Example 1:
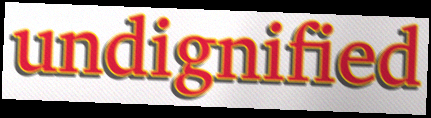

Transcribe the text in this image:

undignified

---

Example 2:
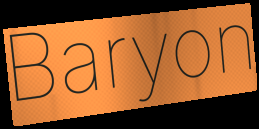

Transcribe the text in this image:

Baryon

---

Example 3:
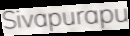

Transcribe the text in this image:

Sivapurapu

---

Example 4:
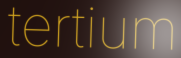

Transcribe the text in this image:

tertium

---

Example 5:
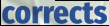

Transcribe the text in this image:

corrects